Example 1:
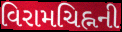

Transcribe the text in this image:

વિરામચિહ્નની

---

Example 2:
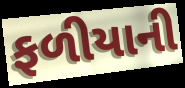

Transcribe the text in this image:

ફળીયાની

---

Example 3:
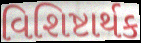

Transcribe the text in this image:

વિશિષ્ટાર્થક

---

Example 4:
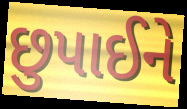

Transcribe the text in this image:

છુપાઈને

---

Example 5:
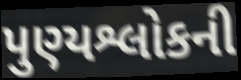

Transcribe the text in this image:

પુણ્યશ્લોકની